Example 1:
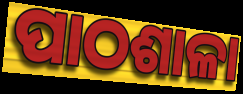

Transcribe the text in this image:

ପାଠଶାଳା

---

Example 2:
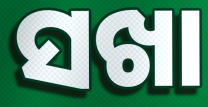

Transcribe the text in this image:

ସଖା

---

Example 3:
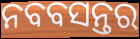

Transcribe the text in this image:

ନବବସନ୍ତର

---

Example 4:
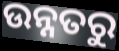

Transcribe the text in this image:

ଉନ୍ନତରୁ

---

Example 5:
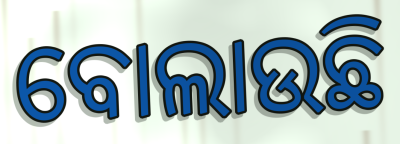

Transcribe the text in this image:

ବୋଲାଉଛି